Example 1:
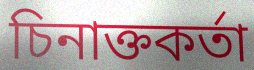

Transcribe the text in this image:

চিনাক্তকৰ্তা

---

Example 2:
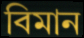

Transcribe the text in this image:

বিমান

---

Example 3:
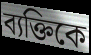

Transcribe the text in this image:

ব্যক্তিকে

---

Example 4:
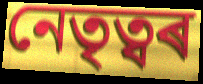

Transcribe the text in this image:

নেতৃত্বৰ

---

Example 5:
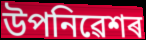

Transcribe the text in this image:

উপনিৱেশৰ